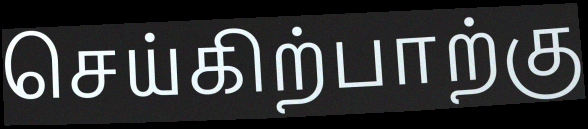
செய்கிற்பாற்கு